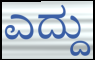
ಎದ್ದು